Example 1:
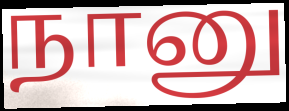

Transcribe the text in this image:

நானு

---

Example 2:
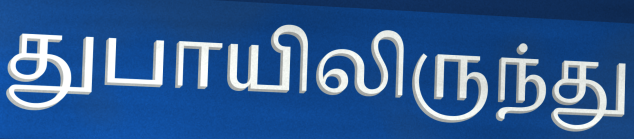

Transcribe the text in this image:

துபாயிலிருந்து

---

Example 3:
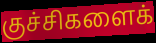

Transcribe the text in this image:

குச்சிகளைக்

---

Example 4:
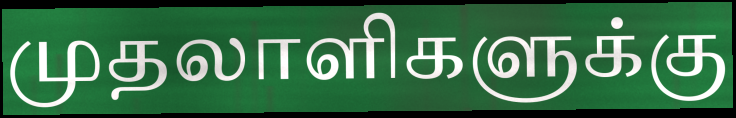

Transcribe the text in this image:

முதலாளிகளுக்கு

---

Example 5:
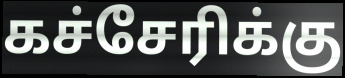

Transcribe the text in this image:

கச்சேரிக்கு